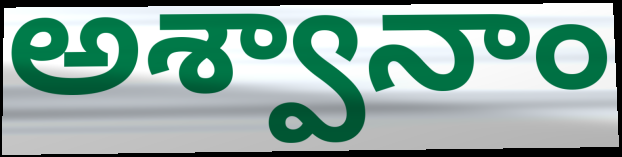
అశ్వానాం